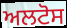
ਅਲਟੋਸ